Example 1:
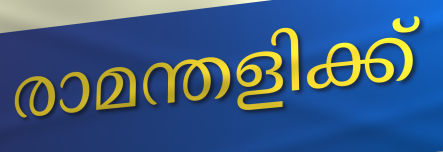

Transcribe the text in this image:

രാമന്തളിക്ക്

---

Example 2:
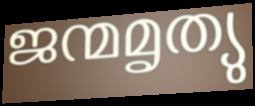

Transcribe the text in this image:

ജന്മമൃത്യു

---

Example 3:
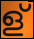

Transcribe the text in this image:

ള്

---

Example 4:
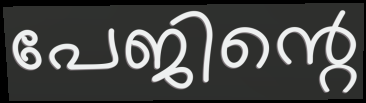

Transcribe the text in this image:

പേജിന്റെ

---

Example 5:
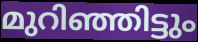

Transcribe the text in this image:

മുറിഞ്ഞിട്ടും